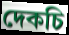
দেকচি